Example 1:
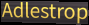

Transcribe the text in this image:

Adlestrop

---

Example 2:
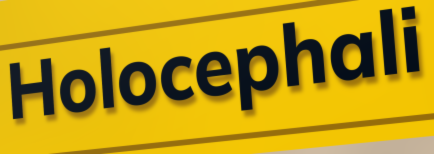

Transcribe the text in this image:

Holocephali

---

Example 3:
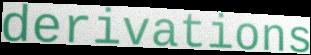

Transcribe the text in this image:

derivations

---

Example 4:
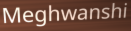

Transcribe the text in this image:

Meghwanshi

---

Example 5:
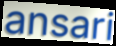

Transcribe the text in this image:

ansari